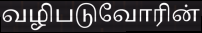
வழிபடுவோரின்